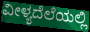
ವೀಳ್ಯದೆಲೆಯಲ್ಲಿ